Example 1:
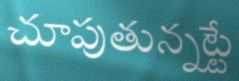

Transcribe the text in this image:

చూపుతున్నట్టే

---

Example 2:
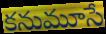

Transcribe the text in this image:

కనుమూసే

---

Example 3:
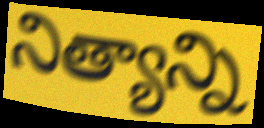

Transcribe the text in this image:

నిత్యాన్ని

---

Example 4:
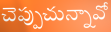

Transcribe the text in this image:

చెప్పుచున్నావో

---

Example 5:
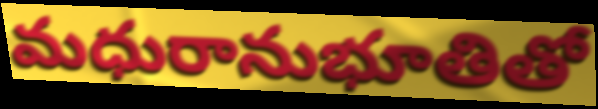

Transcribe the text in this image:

మధురానుభూతితో